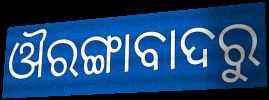
ଔରଙ୍ଗାବାଦରୁ